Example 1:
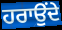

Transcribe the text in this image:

ਹਰਾਉਂਦੇ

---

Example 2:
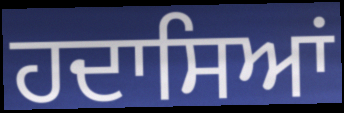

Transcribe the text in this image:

ਹਦਾਸਿਆਂ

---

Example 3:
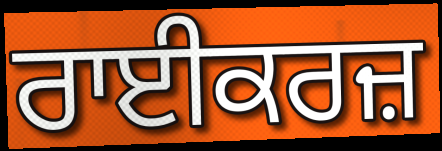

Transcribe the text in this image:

ਰਾਈਕਰਜ਼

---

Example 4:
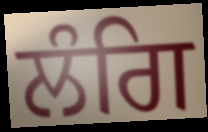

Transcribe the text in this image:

ਲੰਗਿ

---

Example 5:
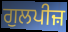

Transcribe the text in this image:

ਗੁਲਪੀਜ਼